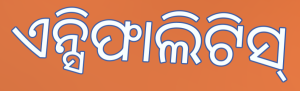
ଏନ୍ସିଫାଲିଟିସ୍